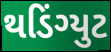
થડિંગ્યુટ